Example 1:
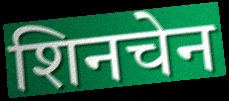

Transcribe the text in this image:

शिनचेन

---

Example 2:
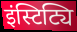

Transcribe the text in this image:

इंस्टिट्यि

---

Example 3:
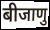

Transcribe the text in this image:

बीजाणु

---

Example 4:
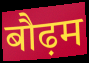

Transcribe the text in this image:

बौढ़म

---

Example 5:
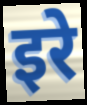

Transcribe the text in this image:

इरे